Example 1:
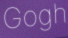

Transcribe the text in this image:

Gogh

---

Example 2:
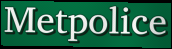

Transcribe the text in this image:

Metpolice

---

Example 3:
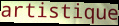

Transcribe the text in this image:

artistique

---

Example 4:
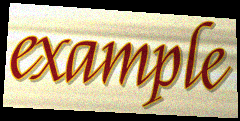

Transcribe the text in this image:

example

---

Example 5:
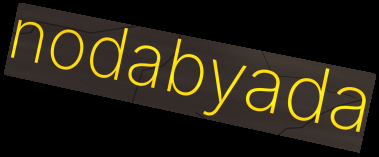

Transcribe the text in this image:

nodabyada